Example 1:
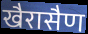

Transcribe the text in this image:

खैरासैण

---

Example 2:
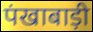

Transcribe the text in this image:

पंखाबाड़ी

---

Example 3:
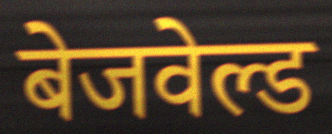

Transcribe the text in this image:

बेजवेल्ड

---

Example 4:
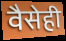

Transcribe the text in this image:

वैसेही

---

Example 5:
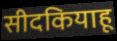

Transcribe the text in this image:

सीदकियाहू